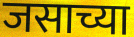
जसाच्या